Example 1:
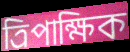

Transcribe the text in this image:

ত্ৰিপাক্ষিক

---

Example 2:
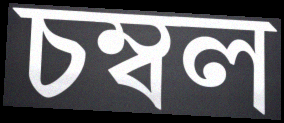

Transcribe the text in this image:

চম্বল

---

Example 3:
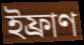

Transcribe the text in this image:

ইফ্ৰাণ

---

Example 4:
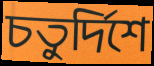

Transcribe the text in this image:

চতুৰ্দিশে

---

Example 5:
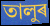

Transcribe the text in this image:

তালুৰ